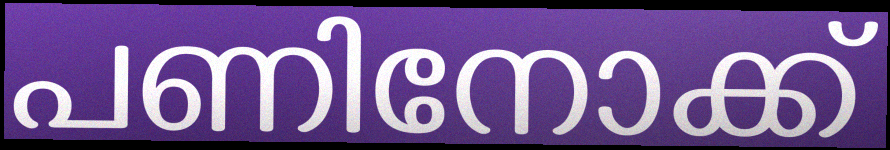
പണിനോക്ക്